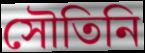
সৌতিনি